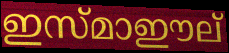
ഇസ്മാഈല്